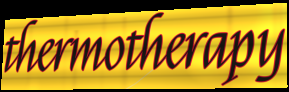
thermotherapy